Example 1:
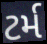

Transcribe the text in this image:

ટર્મ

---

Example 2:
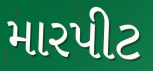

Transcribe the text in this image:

મારપીટ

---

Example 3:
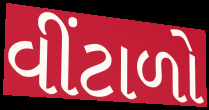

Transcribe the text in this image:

વીંટાળો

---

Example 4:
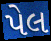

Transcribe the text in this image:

પેલ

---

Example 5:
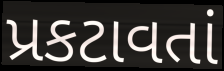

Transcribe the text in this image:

પ્રકટાવતાં